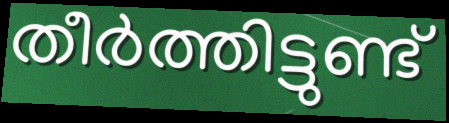
തീർത്തിട്ടുണ്ട്